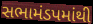
સભામંડપમાંથી